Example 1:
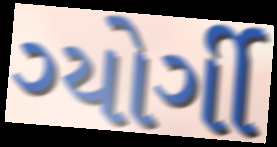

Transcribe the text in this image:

ગ્યોર્ગી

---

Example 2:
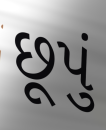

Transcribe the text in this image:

છૂપું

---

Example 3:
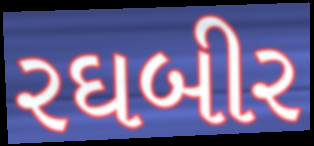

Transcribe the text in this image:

રઘબીર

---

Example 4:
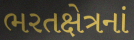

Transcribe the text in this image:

ભરતક્ષેત્રનાં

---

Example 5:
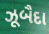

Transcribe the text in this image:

ઝૂબૈદા